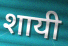
शायी